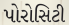
પોરોસિટી